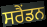
ਸਰੈਂਡਨ